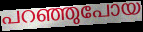
പറഞ്ഞുപോയ